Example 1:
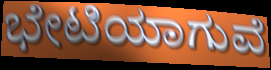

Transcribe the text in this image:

ಭೇಟಿಯಾಗುವೆ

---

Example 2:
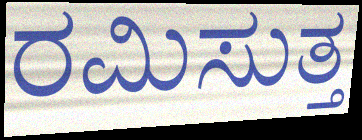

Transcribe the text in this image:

ರಮಿಸುತ್ತ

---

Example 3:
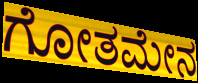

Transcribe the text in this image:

ಗೋತಮೇನ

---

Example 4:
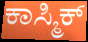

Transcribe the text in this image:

ಕಾಸ್ಮಿಕ್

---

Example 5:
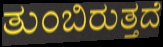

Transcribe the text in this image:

ತುಂಬಿರುತ್ತದೆ